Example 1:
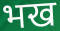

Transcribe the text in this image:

भख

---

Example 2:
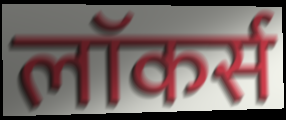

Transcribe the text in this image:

लॉकर्स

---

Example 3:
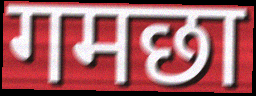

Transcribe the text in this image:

गमछा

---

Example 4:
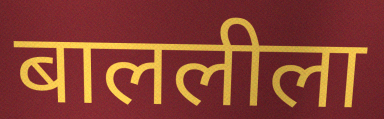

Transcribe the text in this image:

बाललीला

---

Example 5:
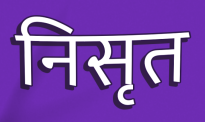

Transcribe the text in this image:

निसृत